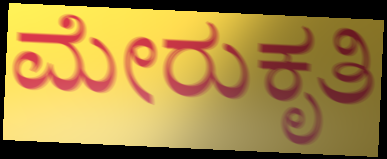
ಮೇರುಕೃತಿ